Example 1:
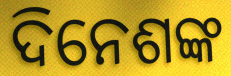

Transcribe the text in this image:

ଦିନେଶଙ୍କ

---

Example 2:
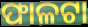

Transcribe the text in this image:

ଫାଳଟା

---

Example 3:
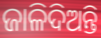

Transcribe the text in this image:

ଜାଳିଦିଅନ୍ତି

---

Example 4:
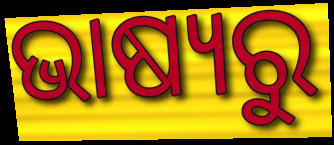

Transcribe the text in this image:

ଭାଷ୍ୟରୁ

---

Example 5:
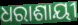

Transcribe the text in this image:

ଧରାଶାୟୀ